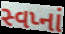
સ્વપ્નાં